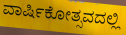
ವಾರ್ಷಿಕೋತ್ಸವದಲ್ಲಿ